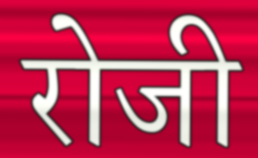
रोजी